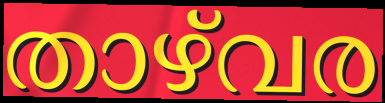
താഴ്‌വര